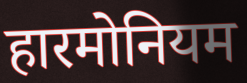
हारमोनियम